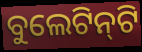
ବୁଲେଟିନ୍‍ଟି